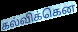
கல்விக்கென